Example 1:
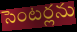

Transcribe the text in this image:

సెంటర్లను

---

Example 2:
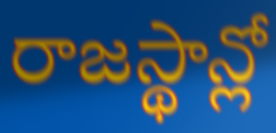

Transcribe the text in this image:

రాజస్థాన్లో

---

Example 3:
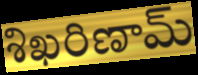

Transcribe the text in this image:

శిఖరిణామ్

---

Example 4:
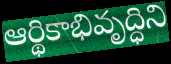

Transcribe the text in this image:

ఆర్థికాభివృద్ధిని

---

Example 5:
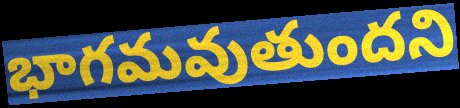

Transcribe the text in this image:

భాగమవుతుందని